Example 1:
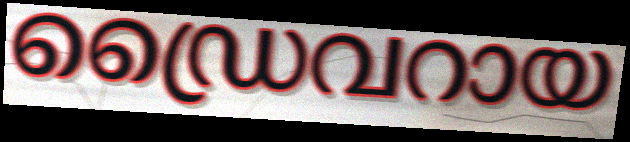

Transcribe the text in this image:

ഡ്രൈവറായ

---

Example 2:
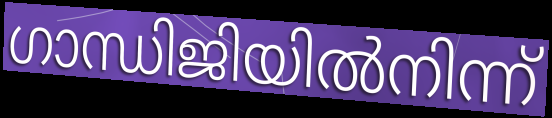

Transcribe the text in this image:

ഗാന്ധിജിയിൽനിന്ന്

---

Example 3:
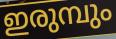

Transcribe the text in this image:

ഇരുമ്പും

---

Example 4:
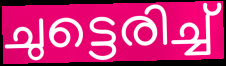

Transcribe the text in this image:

ചുട്ടെരിച്ച്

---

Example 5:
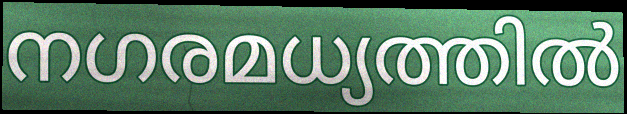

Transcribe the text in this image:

നഗരമധ്യത്തിൽ